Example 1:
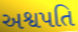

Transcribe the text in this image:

અશ્વપતિ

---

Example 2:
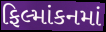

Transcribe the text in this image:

ફિલ્માંકનમાં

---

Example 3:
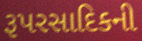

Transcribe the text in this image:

રૂપરસાદિકની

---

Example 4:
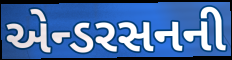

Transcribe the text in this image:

એન્ડરસનની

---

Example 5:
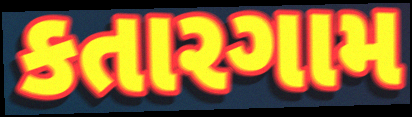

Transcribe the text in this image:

કતારગામ